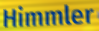
Himmler